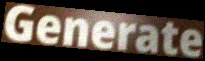
Generate